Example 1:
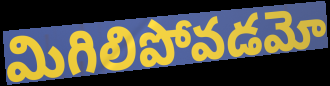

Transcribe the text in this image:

మిగిలిపోవడమో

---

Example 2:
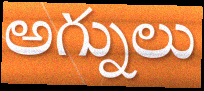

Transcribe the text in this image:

అగ్నులు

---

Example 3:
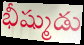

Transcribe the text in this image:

భీష్ముడు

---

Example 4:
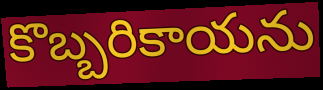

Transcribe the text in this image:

కొబ్బరికాయను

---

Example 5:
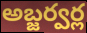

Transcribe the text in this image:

అబ్జర్వర్ల